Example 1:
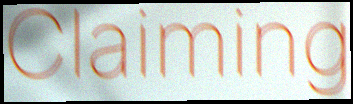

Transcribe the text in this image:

Claiming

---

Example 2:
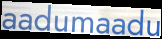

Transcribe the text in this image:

aadumaadu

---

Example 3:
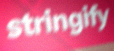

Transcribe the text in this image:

stringify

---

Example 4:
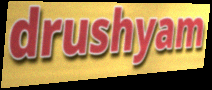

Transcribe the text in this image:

drushyam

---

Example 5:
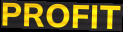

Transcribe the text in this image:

PROFIT